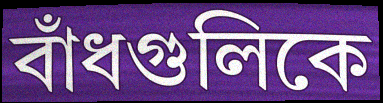
বাঁধগুলিকে